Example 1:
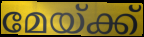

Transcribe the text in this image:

മേയ്ക്ക്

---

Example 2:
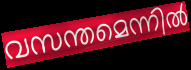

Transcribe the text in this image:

വസന്തമെന്നിൽ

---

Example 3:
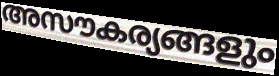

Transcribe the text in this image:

അസൗകര്യങ്ങളും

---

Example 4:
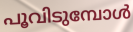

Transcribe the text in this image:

പൂവിടുമ്പോൾ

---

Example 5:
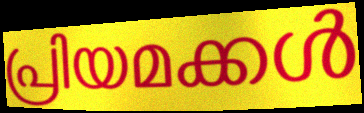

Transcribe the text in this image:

പ്രിയമക്കൾ